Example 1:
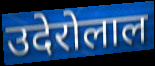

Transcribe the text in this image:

उदेरोलाल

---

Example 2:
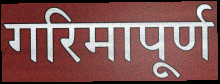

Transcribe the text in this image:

गरिमापूर्ण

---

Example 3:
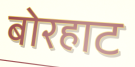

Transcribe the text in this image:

बोरहाट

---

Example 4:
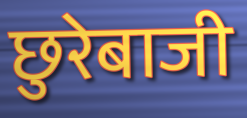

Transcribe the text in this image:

छुरेबाजी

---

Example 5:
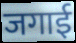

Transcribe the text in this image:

जगाई